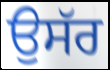
ਉਸੱਰ